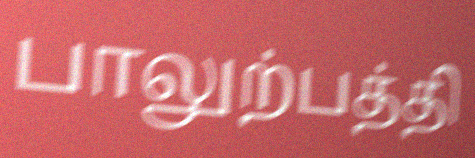
பாலுற்பத்தி